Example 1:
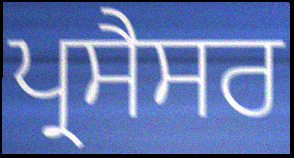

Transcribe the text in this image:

ਪ੍ਰਸੈਸਰ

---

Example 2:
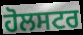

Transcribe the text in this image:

ਹੋਲਸਟਰ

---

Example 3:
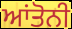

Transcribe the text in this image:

ਆਂਤੋਨੀ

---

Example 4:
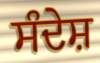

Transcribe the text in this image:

ਸੰਦੇਸ਼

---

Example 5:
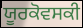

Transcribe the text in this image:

ਯੂਰਕੋਵਸਕੀ